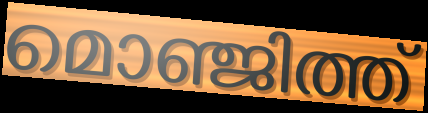
മൊഞ്ജിത്ത്